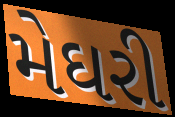
મેઘરી